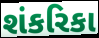
શંકરિકા